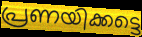
പ്രണയിക്കട്ടെ